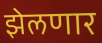
झेलणार